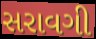
સરાવગી